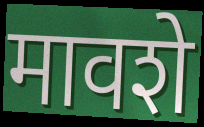
मावशे